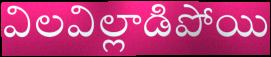
విలవిల్లాడిపోయి